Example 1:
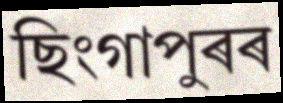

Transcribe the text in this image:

ছিংগাপুৰৰ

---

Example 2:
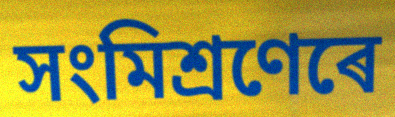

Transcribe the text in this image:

সংমিশ্ৰণেৰে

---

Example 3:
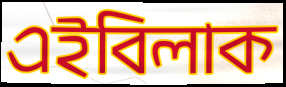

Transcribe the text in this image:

এইবিলাক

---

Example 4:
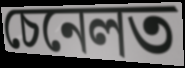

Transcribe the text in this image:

চেনেলত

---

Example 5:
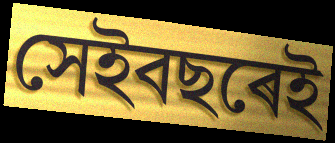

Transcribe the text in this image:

সেইবছৰেই